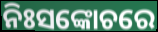
ନିଃସଙ୍କୋଚରେ